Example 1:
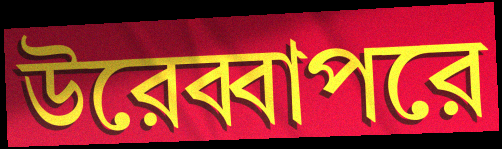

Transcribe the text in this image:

উরেব্বাপরে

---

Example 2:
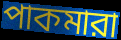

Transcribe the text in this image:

পাকমারা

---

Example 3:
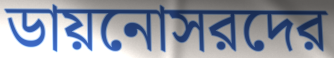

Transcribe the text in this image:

ডায়নোসরদের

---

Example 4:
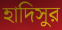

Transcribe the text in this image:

হাদিসুর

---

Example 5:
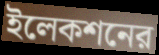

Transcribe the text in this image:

ইলেকশনের